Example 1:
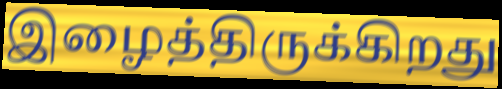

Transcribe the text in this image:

இழைத்திருக்கிறது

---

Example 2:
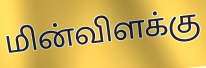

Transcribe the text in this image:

மின்விளக்கு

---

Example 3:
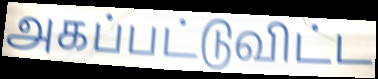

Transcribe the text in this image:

அகப்பட்டுவிட்ட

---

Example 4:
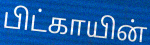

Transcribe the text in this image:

பிட்காயின்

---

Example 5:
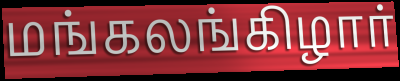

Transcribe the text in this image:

மங்கலங்கிழார்